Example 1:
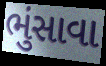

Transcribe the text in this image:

ભુંસાવા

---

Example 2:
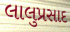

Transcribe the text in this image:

લાલુપ્રસાદ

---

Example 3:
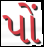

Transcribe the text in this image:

પોં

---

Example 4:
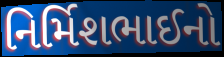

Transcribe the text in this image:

નિર્મિશભાઈનો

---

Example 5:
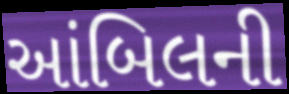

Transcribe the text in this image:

આંબિલની